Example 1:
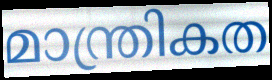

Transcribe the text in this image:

മാന്ത്രികത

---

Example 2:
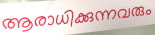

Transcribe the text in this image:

ആരാധിക്കുന്നവരും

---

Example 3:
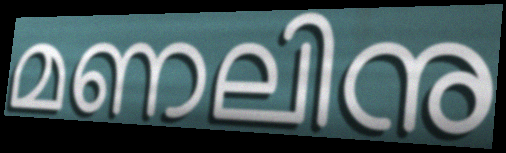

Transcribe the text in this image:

മണലിനു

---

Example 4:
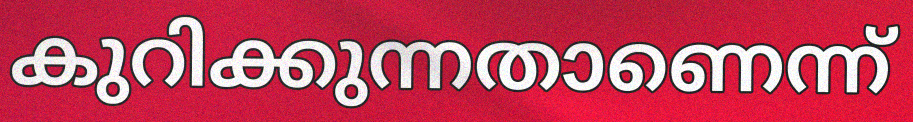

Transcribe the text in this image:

കുറിക്കുന്നതാണെന്ന്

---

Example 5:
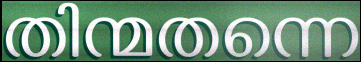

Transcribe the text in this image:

തിന്മതന്നെ